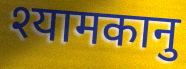
श्यामकानु